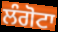
ਲੰਗੋਟਾ